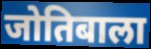
जोतिबाला